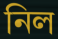
নিল